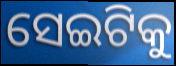
ସେଇଟିକୁ